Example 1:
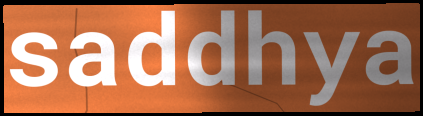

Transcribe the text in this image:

saddhya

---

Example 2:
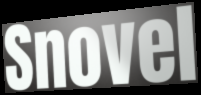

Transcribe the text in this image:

Snovel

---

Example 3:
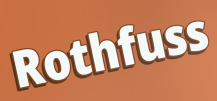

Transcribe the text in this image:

Rothfuss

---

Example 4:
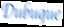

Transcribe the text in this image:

Dubuque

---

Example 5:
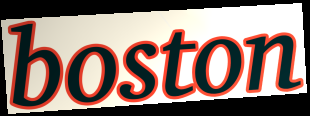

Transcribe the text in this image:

boston